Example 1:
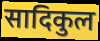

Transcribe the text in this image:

सादिकुल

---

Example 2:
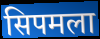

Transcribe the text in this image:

सिपमला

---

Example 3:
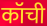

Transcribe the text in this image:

कॉची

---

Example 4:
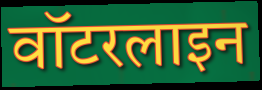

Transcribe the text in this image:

वॉटरलाइन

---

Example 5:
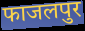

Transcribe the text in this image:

फाजलपुर